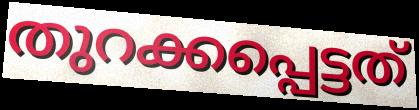
തുറക്കപ്പെട്ടത്